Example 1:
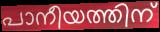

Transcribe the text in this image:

പാനീയത്തിന്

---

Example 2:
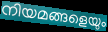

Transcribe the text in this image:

നിയമങ്ങളെയും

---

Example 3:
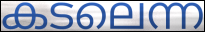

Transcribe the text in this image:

കടലെന്ന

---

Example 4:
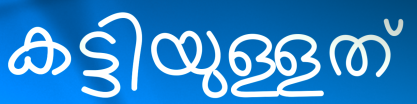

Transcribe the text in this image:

കട്ടിയുള്ളത്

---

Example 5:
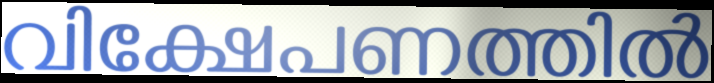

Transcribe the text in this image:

വിക്ഷേപണത്തിൽ